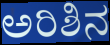
ಅರಿಶಿನ